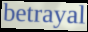
betrayal